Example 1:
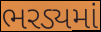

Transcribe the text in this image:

ભરડ્યમાં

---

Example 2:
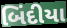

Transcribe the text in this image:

બિંદીયા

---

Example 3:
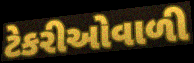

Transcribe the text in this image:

ટેકરીઓવાળી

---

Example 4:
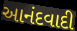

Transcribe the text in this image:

આનંદવાદી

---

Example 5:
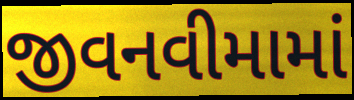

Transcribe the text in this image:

જીવનવીમામાં